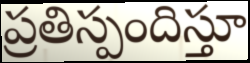
ప్రతిస్పందిస్తూ